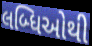
લબ્ધિઓથી